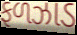
ફળઝાડ